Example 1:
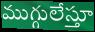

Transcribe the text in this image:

ముగ్గులేస్తూ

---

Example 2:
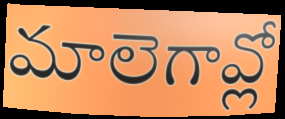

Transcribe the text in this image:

మాలెగావ్లో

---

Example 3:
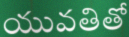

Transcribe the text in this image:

యువతితో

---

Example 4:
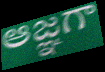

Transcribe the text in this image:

ఆజ్ఞగా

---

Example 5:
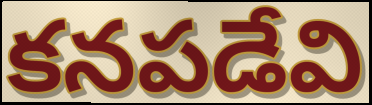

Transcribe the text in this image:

కనపడేవి